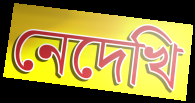
নেদেখি